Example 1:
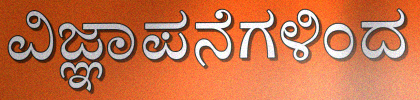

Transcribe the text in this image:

ವಿಜ್ಞಾಪನೆಗಳಿಂದ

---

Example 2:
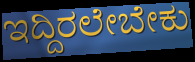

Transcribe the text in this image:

ಇದ್ದಿರಲೇಬೇಕು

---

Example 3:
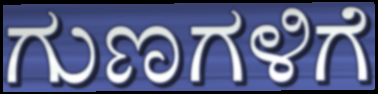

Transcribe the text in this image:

ಗುಣಗಳಿಗೆ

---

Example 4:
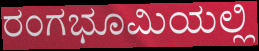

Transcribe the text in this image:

ರಂಗಭೂಮಿಯಲ್ಲಿ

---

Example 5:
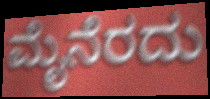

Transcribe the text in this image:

ಮೈನೆರದು